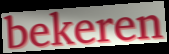
bekeren